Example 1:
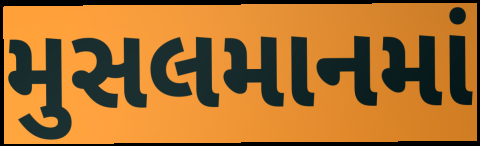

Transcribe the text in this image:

મુસલમાનમાં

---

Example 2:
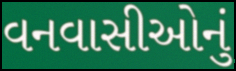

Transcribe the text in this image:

વનવાસીઓનું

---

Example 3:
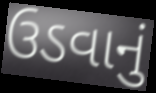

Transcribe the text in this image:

ઉડવાનું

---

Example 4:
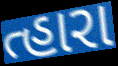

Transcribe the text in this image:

ત્હારા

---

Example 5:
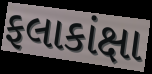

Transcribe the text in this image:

ફલાકાંક્ષા